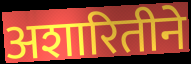
अशारितीने